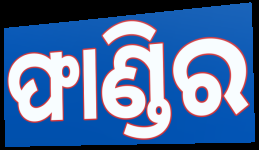
ଫାଣ୍ଡିର